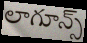
లాగూన్స్